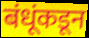
बंधूंकडून